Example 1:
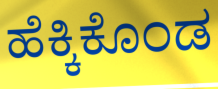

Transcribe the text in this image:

ಹೆಕ್ಕಿಕೊಂಡ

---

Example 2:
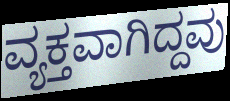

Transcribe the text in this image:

ವ್ಯಕ್ತವಾಗಿದ್ದವು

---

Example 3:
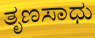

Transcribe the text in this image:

ತೃಣಸಾಧು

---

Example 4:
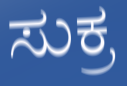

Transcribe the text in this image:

ಸುಕ್ರ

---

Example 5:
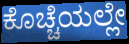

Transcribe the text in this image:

ಕೊಚ್ಚೆಯಲ್ಲೇ